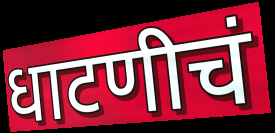
धाटणीचं